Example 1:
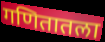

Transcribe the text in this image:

गणितातला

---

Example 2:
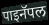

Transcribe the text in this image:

पाइनॅपल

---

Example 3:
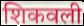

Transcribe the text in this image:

शिकवली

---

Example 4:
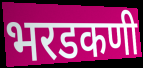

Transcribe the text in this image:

भरडकणी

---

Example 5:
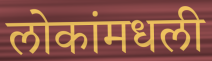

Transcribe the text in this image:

लोकांमधली